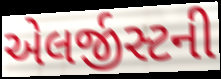
એલર્જીસ્ટની